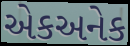
એકઅનેક